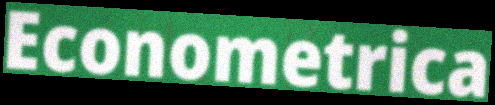
Econometrica